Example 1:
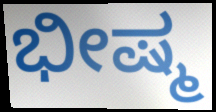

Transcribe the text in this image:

ಭೀಷ್ಮ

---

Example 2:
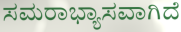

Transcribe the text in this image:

ಸಮರಾಭ್ಯಾಸವಾಗಿದೆ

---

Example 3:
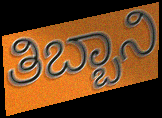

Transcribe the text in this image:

ತಿಬ್ಬಾನಿ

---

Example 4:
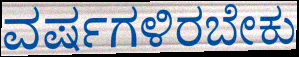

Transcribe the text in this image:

ವರ್ಷಗಳಿರಬೇಕು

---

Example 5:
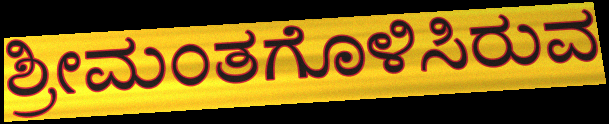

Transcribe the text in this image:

ಶ್ರೀಮಂತಗೊಳಿಸಿರುವ